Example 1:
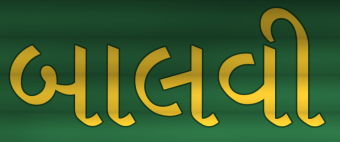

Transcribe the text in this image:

બાલવી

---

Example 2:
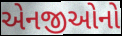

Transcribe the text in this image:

એનજીઓનો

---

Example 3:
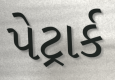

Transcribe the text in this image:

પેટ્રાર્ક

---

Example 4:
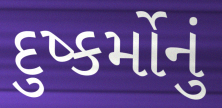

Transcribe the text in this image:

દુષ્કર્મોનું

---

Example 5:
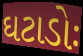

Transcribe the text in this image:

ઘટાડોઃ